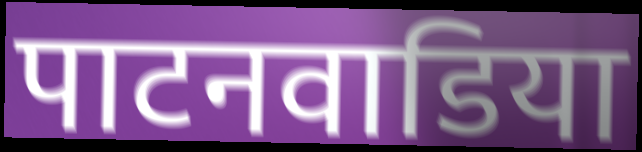
पाटनवाडिया